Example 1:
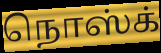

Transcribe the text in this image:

நொஸ்க்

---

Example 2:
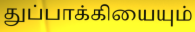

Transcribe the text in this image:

துப்பாக்கியையும்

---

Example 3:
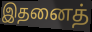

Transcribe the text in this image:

இதனைத்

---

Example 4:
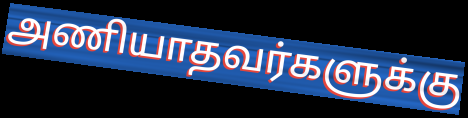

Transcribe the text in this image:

அணியாதவர்களுக்கு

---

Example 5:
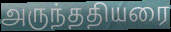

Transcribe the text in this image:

அருந்ததியரை